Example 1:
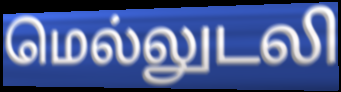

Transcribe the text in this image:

மெல்லுடலி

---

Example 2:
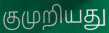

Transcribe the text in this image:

குமுறியது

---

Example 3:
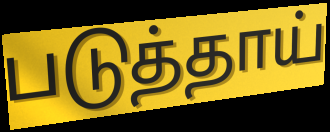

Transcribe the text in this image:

படுத்தாய்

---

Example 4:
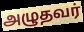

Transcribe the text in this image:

அழுதவர்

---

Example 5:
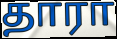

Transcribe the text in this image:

தாரா